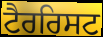
ਟੈਰਰਿਸਟ